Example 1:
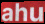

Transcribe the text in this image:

ahu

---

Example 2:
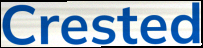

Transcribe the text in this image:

Crested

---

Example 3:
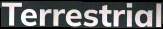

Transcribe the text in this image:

Terrestrial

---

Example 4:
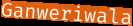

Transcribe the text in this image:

Ganweriwala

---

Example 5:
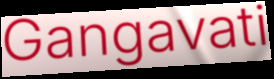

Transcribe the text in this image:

Gangavati